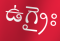
ఉగ్రైః